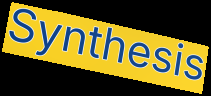
Synthesis